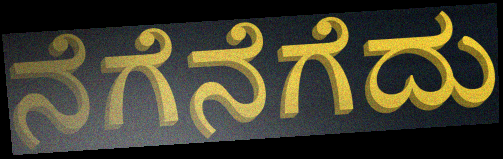
ನೆಗೆನೆಗೆದು